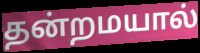
தன்றமயால்